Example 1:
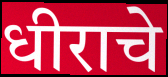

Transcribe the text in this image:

धीराचे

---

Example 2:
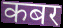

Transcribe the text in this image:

कबर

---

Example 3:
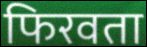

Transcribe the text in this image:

फिरवता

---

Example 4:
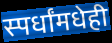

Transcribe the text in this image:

स्पर्धांमधेही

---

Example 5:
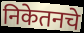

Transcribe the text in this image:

निकेतनचे